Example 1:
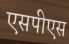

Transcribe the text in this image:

एसपीएस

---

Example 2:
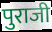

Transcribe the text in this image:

पुराजी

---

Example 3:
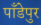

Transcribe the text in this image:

पाँडेपुर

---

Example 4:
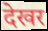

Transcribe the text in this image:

देखर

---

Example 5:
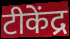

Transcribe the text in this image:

टीकेंद्र